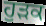
ਹੁੜਕ